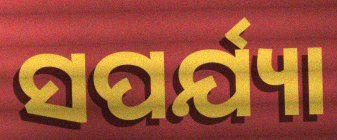
ସପର୍ଯ୍ୟା